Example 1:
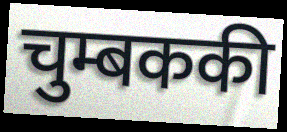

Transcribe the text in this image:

चुम्बककी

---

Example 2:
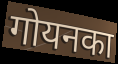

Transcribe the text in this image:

गोयनका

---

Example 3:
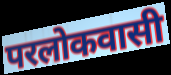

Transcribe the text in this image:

परलोकवासी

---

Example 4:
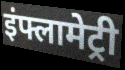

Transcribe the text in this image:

इंफ्लामेट्री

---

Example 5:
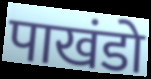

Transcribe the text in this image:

पाखंडो